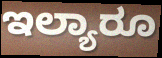
ಇಲ್ಯಾರೂ